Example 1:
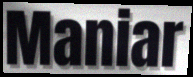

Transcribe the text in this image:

Maniar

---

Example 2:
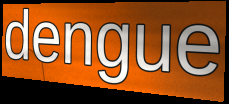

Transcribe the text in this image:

dengue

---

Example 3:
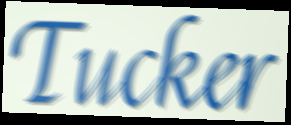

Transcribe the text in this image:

Tucker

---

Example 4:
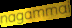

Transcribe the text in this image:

nagammai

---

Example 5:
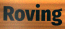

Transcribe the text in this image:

Roving